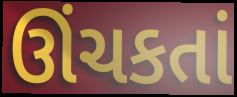
ઊંચકતાં